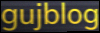
gujblog